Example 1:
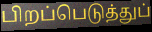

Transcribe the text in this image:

பிறப்பெடுத்துப்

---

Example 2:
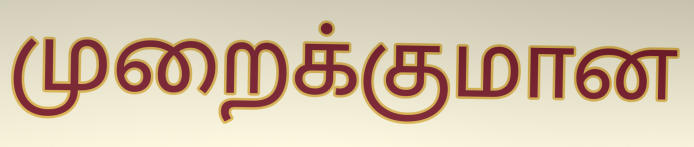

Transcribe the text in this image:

முறைக்குமான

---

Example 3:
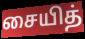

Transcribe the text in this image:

சையித்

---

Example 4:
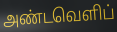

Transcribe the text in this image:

அண்டவெளிப்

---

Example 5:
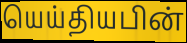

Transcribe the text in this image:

யெய்தியபின்